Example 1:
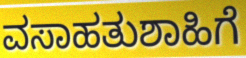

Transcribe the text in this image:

ವಸಾಹತುಶಾಹಿಗೆ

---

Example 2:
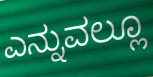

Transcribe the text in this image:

ಎನ್ನುವಲ್ಲೂ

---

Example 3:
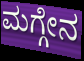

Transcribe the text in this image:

ಮಗ್ಗೇನ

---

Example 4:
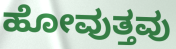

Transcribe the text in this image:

ಹೋವುತ್ತವು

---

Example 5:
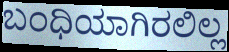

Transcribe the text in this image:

ಬಂಧಿಯಾಗಿರಲಿಲ್ಲ